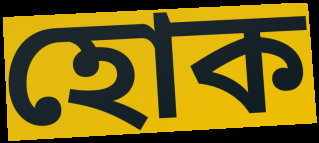
হোক